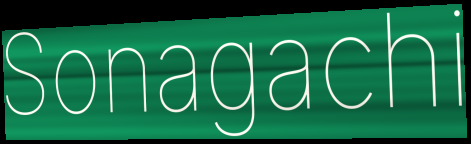
Sonagachi